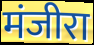
मंजीरा